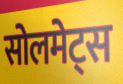
सोलमेट्स